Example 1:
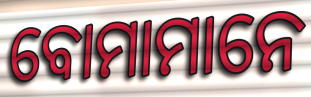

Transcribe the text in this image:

ବୋମାମାନେ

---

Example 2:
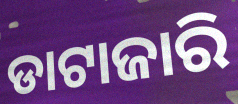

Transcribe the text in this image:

ଡାଟାଜାରି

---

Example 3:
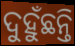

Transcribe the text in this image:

ଦୁହୁଁଛନ୍ତି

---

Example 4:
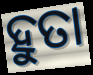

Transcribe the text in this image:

ହୁତା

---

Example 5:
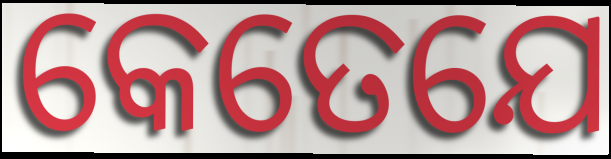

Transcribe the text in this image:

କେତେଯେ